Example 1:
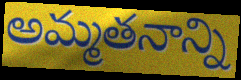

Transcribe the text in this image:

అమ్మతనాన్ని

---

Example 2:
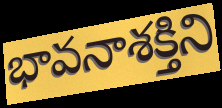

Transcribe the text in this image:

భావనాశక్తిని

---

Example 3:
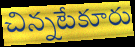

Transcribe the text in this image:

చిన్నటేకూరు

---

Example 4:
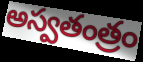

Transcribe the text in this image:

అస్వతంత్రం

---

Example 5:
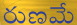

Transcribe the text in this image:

రుణమే